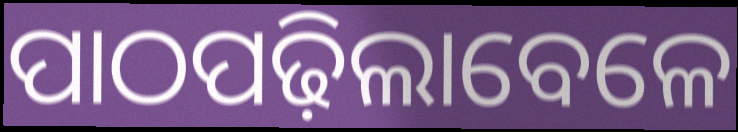
ପାଠପଢ଼ିଲାବେଳେ